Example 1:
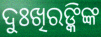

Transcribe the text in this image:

ଦୁଃଖିରଙ୍କିଙ୍କ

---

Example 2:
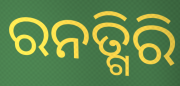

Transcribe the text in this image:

ରନତ୍ଗିରି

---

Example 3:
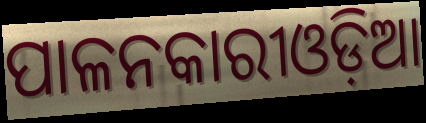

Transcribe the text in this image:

ପାଳନକାରୀଓଡ଼ିଆ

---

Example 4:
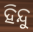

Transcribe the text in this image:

ହିନ୍ଦୁ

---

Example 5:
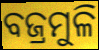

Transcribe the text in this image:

ବଜ୍ରମୁଳି